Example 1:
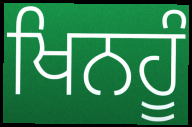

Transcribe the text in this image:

ਖਿਨਹੂੰ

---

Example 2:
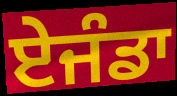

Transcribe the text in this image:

ਏਜੰਡਾ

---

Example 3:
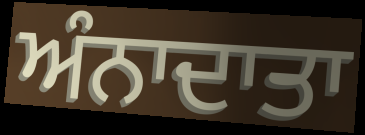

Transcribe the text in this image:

ਅੰਨਾਦਾਤਾ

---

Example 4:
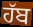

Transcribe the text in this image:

ਹੱਬ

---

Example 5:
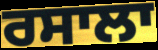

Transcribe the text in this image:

ਰਸਾਲਾ